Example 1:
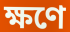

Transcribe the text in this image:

ক্ষণে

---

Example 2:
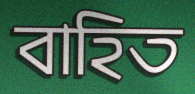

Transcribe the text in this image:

বাহিত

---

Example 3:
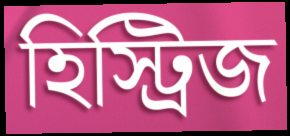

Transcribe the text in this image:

হিস্ট্রিজ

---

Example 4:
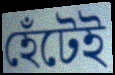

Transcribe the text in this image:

হেঁটেই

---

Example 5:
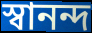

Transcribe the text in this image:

স্বানন্দ